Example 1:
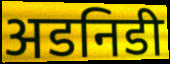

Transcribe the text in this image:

अडनिडी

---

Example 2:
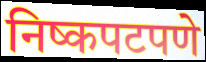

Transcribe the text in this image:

निष्कपटपणे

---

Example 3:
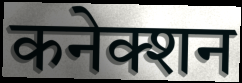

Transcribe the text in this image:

कनेक्‍शन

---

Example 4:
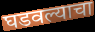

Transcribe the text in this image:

घडवल्याचा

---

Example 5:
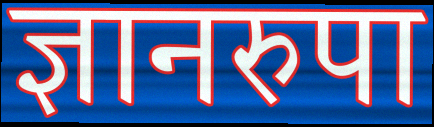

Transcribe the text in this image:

ज्ञानरुपा